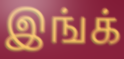
இங்க்